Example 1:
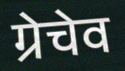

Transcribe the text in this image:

ग्रेचेव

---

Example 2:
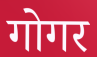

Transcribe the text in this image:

गोगर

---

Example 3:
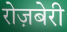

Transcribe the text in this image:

रोज़बेरी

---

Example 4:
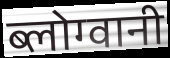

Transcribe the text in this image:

ब्लोग्वानी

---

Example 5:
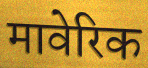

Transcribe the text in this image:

मावेरिक